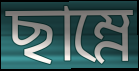
ছাম্নে